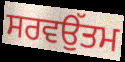
ਸਰਵਉੱਤਮ